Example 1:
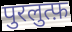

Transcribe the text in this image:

पुरलुत्फ़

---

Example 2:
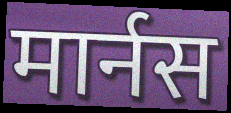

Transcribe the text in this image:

मार्नस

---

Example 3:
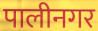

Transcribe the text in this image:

पालीनगर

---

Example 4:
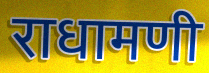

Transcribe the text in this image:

राधामणी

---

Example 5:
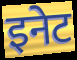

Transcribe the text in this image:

इनेट